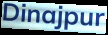
Dinajpur